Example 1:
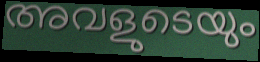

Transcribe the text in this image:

അവളുടെയും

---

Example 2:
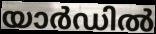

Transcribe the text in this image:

യാർഡിൽ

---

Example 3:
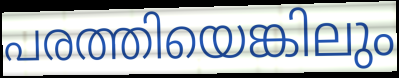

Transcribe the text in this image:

പരത്തിയെങ്കിലും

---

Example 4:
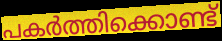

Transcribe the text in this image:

പകർത്തിക്കൊണ്ട്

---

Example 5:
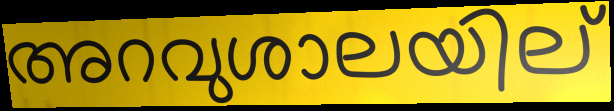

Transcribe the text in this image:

അറവുശാലയില്